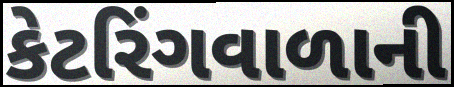
કેટરિંગવાળાની